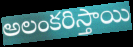
అలంకరిస్తాయి